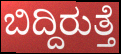
ಬಿದ್ದಿರುತ್ತೆ